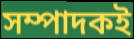
সম্পাদকই